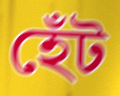
হেঁট